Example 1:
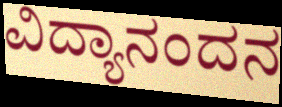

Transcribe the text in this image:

ವಿದ್ಯಾನಂದನ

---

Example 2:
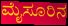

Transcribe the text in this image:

ಮೈಸೂರಿನ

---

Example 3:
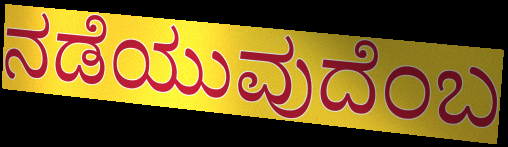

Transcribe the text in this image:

ನಡೆಯುವುದೆಂಬ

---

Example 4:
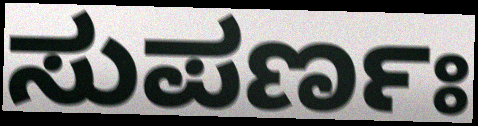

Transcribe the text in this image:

ಸುಪರ್ಣಃ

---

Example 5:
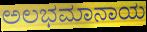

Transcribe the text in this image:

ಅಲಭಮಾನಾಯ